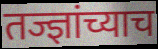
तज्ज्ञांच्याच